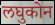
लघुकोन